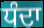
ਧੰਦਾ